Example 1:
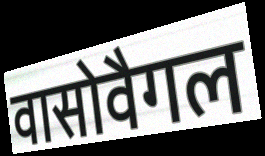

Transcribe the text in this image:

वासोवैगल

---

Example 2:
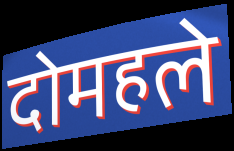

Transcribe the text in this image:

दोमहले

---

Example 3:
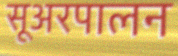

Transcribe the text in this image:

सूअरपालन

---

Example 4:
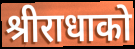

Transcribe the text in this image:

श्रीराधाको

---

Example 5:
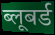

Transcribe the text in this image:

ब्लूबर्ड